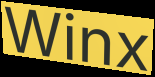
Winx